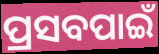
ପ୍ରସବପାଇଁ